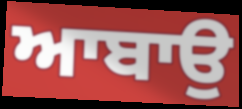
ਆਬਾਉ